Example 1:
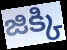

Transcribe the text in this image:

జిక్కి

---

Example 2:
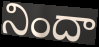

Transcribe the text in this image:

నిందా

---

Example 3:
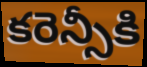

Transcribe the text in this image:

కరెన్సీకి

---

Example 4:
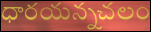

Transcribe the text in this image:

ధారయన్నచలం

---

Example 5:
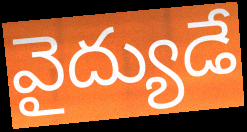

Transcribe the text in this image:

వైద్యుడే